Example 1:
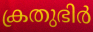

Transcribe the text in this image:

ക്രതുഭിർ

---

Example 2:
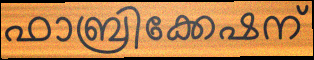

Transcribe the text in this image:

ഫാബ്രിക്കേഷന്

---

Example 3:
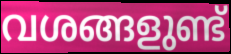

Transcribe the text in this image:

വശങ്ങളുണ്ട്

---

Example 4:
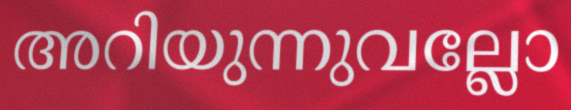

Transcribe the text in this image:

അറിയുന്നുവല്ലോ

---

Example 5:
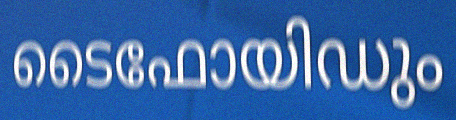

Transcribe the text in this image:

ടൈഫോയിഡും